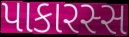
પાકારસ્સ